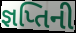
જ્ઞપ્તિની